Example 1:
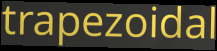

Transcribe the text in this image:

trapezoidal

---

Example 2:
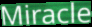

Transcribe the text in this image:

Miracle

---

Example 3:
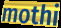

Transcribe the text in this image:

mothi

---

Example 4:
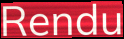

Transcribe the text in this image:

Rendu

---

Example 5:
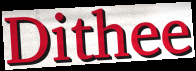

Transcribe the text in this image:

Dithee